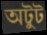
অটুট